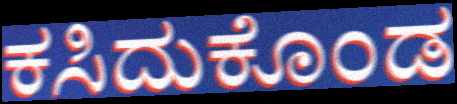
ಕಸಿದುಕೊಂಡ